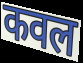
कवल